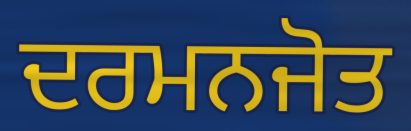
ਦਰਮਨਜੋਤ